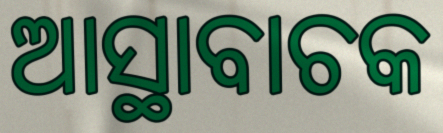
ଆସ୍ଥାବାଚକ